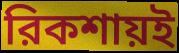
রিকশায়ই